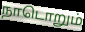
நாடொறும்